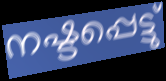
നഷ്ടപ്പെട്ടു്